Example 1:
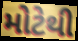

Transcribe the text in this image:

મોટેથી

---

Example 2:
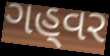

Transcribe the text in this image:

ગહ્‌વર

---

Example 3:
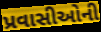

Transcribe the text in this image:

પ્રવાસીઓની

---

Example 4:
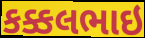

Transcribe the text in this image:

કક્કલભાઇ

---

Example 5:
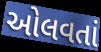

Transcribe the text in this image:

ઓલવતાં